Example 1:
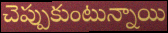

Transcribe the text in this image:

చెప్పుకుంటున్నాయి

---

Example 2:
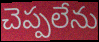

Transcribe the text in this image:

చెప్పలేను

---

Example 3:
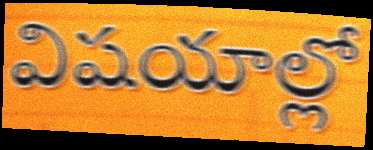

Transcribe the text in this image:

విషయాల్లో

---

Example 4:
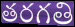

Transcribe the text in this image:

తరగతి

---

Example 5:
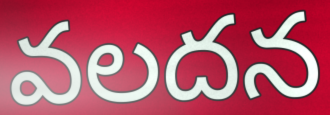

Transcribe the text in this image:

వలదన